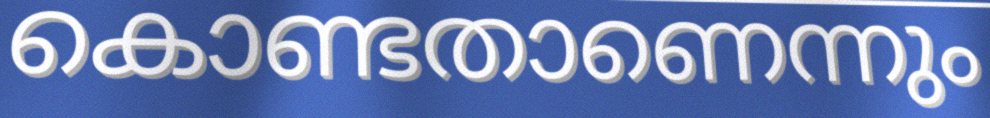
കൊണ്ടതാണെന്നും